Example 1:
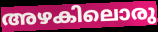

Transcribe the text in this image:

അഴകിലൊരു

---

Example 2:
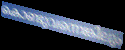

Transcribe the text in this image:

കൊണ്ടുവന്നെങ്കിലും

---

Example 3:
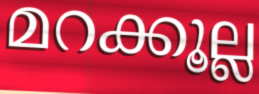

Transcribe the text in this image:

മറക്കൂല്ല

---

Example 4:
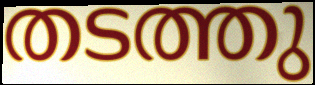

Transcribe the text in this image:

തടത്തു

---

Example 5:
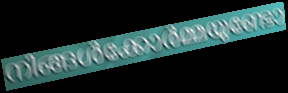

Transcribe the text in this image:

നിങ്ങൾക്കോർമ്മയുണ്ടോ